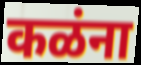
कळंना